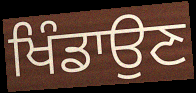
ਖਿੰਡਾਉਣ